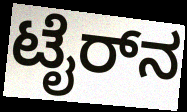
ಟೈರ್‌ನ